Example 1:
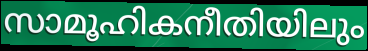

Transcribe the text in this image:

സാമൂഹികനീതിയിലും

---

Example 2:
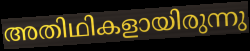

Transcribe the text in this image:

അതിഥികളായിരുന്നു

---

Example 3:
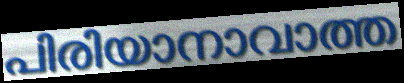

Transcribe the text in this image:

പിരിയാനാവാത്ത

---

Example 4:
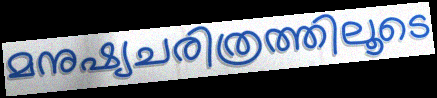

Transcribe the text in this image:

മനുഷ്യചരിത്രത്തിലൂടെ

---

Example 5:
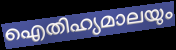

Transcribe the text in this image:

ഐതിഹ്യമാലയും